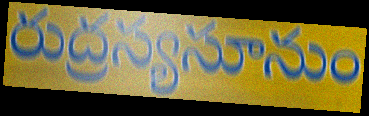
రుద్రస్యసూనుం